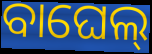
ବାଘେଲ୍